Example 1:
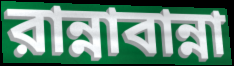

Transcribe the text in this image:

রান্নাবান্না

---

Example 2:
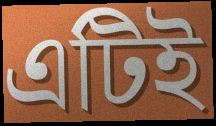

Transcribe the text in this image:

এটিই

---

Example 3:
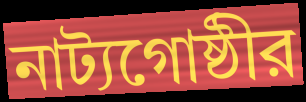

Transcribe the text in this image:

নাট্যগোষ্ঠীর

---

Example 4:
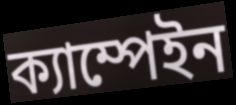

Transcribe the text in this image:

ক্যাম্পেইন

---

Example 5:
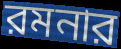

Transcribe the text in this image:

রমনার